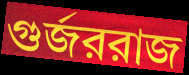
গুর্জররাজ